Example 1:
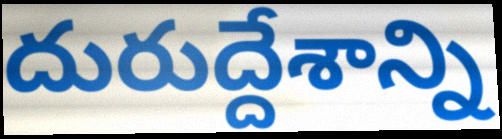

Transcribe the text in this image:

దురుద్దేశాన్ని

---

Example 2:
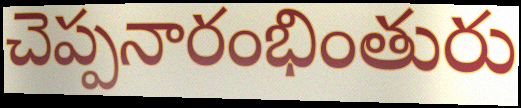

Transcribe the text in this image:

చెప్పనారంభింతురు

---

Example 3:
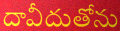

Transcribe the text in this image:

దావీదుతోను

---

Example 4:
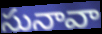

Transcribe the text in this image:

సునావా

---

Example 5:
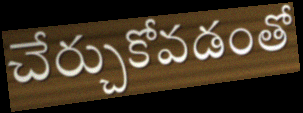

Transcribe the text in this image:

చేర్చుకోవడంతో